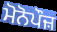
ਮੋਨੋਪੌਜ਼